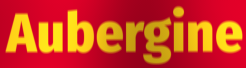
Aubergine